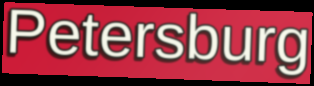
Petersburg